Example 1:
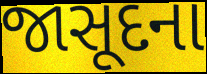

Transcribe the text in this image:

જાસૂદના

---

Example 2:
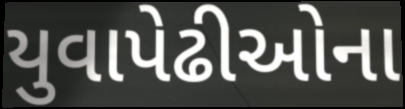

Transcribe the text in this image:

યુવાપેઢીઓના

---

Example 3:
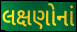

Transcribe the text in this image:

લક્ષણોનાં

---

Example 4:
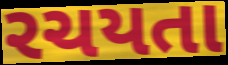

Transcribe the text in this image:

રચયતા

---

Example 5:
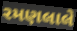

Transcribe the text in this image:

રમણલાલે